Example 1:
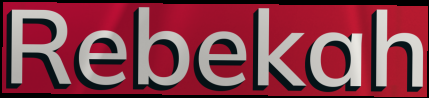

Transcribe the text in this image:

Rebekah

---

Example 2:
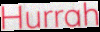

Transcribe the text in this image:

Hurrah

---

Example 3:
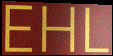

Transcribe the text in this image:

EHL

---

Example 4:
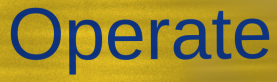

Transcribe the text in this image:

Operate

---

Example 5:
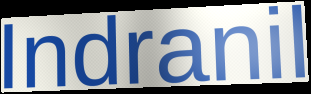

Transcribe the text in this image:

Indranil